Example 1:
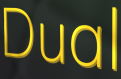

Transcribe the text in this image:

Dual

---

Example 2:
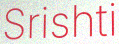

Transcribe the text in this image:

Srishti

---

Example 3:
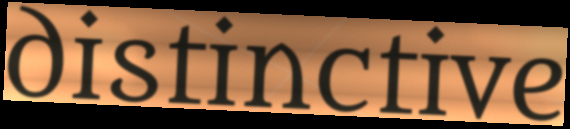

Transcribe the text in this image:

distinctive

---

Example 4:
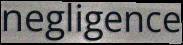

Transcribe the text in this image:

negligence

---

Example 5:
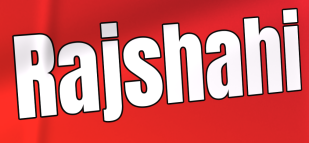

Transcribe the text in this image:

Rajshahi